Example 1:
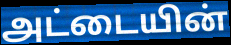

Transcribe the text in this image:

அட்டையின்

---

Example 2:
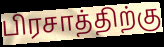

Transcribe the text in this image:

பிரசாத்திற்கு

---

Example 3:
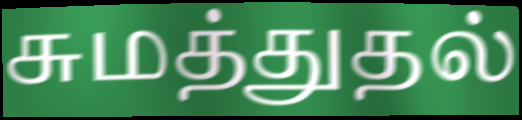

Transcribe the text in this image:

சுமத்துதல்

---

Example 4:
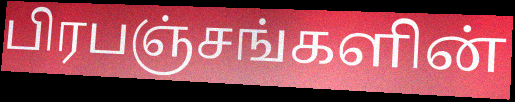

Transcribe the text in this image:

பிரபஞ்சங்களின்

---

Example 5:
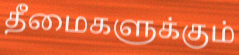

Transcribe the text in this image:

தீமைகளுக்கும்